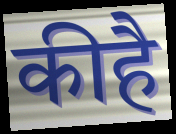
कीहै